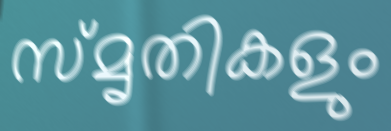
സ്മൃതികളും